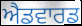
ਐਡਵਾਰਡ